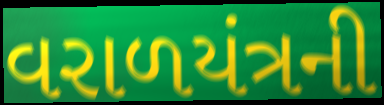
વરાળયંત્રની